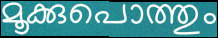
മൂക്കുപൊത്തും